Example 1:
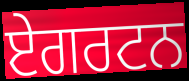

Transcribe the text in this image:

ਏਗਰਟਨ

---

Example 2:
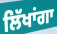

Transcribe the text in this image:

ਲਿੱਖਾਂਗਾ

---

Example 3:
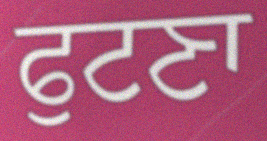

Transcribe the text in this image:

ਫੁਟਣਾ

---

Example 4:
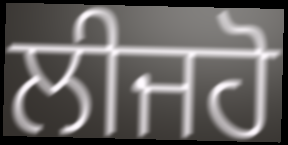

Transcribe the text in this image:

ਲੀਜਹੋ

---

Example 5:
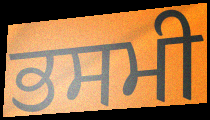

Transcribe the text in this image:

ਭਸਮੀ